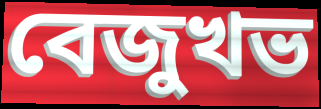
বেজুখভ